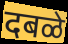
दबळे